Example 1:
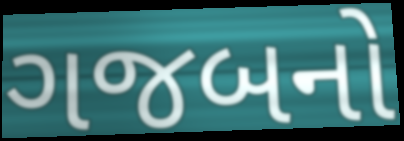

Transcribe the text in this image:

ગજબનો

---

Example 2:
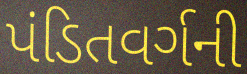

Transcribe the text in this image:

પંડિતવર્ગની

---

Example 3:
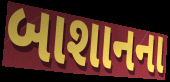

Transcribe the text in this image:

બાશાનના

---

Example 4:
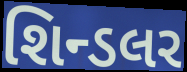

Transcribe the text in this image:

શિન્ડલર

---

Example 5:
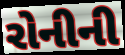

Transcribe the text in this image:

રોનીની